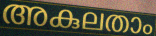
അകുലതാം